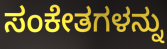
ಸಂಕೇತಗಳನ್ನು